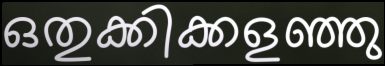
ഒതുക്കിക്കളഞ്ഞു